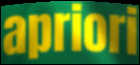
apriori